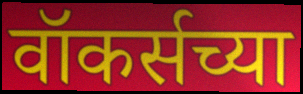
वॉकर्सच्या